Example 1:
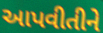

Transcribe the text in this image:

આપવીતીને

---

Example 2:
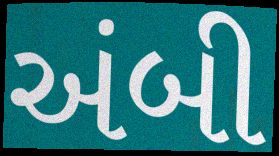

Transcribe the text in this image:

અંબી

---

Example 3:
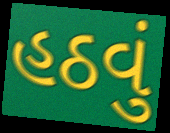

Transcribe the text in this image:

હઠવું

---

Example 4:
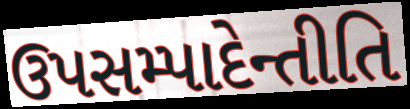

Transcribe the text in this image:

ઉપસમ્પાદેન્તીતિ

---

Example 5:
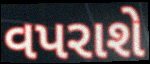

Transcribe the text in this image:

વપરાશે